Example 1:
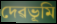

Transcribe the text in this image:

দেৱভূমি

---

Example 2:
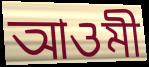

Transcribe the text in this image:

আওমী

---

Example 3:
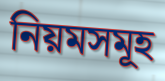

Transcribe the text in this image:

নিয়মসমূহ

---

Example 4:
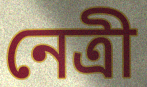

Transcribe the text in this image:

নেত্ৰী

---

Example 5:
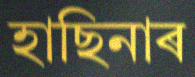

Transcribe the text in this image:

হাছিনাৰ